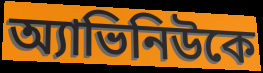
অ্যাভিনিউকে